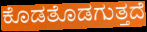
ಕೊಡತೊಡಗುತ್ತದೆ